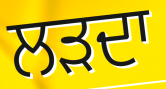
ਲੜਦਾ